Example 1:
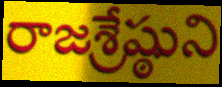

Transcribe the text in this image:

రాజశ్రేష్ఠుని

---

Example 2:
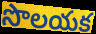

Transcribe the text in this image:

సొలయక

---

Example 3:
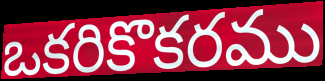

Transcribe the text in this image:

ఒకరికొకరము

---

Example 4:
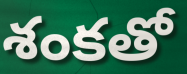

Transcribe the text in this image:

శంకతో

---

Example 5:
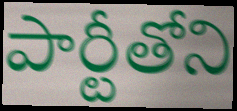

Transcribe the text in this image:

పార్టీతోని